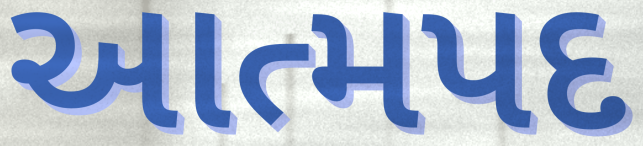
આત્મપદ